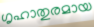
ഗൃഹാതുരമായ